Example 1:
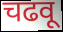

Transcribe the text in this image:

चढवू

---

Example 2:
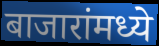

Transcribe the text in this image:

बाजारांमध्ये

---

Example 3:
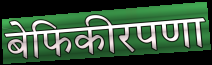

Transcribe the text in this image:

बेफिकीरपणा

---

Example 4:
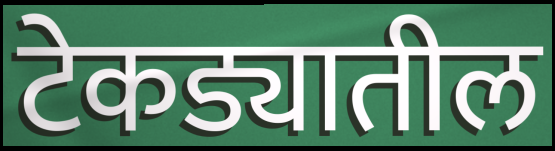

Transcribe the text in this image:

टेकड्यातील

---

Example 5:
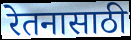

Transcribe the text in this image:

रेतनासाठी